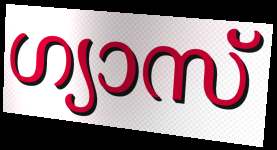
ഗ്യാസ്